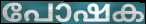
പോഷക